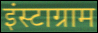
इंस्टाग्राम